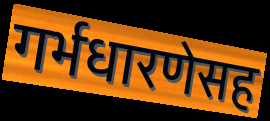
गर्भधारणेसह